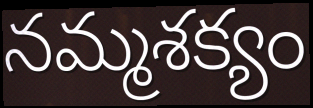
నమ్మశక్యం